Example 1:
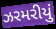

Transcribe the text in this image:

ઝરમરીયું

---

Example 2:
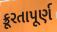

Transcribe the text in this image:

ક્રૂરતાપૂર્ણ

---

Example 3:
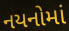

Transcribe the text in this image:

નયનોમાં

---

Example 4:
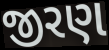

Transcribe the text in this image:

જીરણ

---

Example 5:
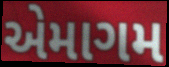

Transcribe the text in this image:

એમાગમ